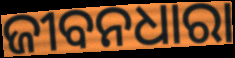
ଜୀବନଧାରା